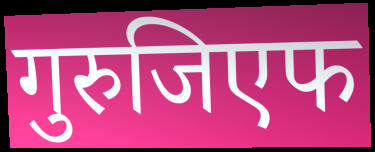
गुरुजिएफ